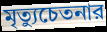
মৃত্যুচেতনার